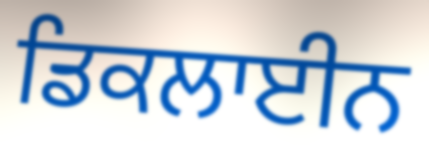
ਡਿਕਲਾਈਨ